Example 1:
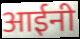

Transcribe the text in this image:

आईनी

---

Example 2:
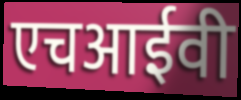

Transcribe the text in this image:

एचआईवी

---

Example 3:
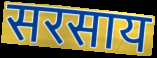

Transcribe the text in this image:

सरसाय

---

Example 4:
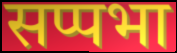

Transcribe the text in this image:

सप्पभा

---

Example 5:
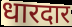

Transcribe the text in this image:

धारदार